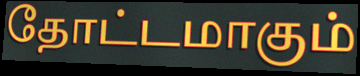
தோட்டமாகும்